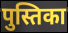
पुस्तिका